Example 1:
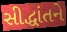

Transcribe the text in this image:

સીદ્ધાંતને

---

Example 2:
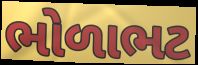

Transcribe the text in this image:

ભોળાભટ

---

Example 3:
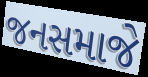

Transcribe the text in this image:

જનસમાજે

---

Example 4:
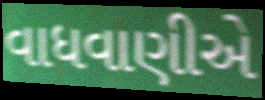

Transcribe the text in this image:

વાધવાણીએ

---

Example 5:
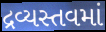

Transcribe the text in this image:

દ્રવ્યસ્તવમાં